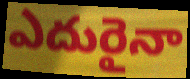
ఎదురైనా